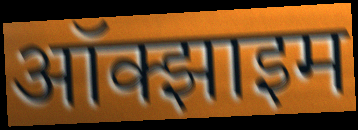
ऑक्झाइम